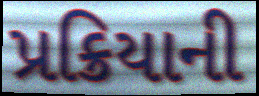
પ્રક્રિયાની